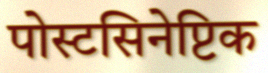
पोस्टसिनेप्टिक